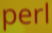
perl